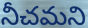
నీచమని